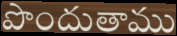
పొందుతాము